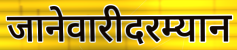
जानेवारीदरम्यान